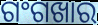
ଗଂଗଖାର